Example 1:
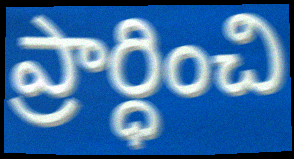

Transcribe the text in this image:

ప్రార్ధించి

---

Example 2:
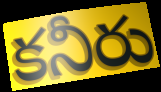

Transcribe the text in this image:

కనీరు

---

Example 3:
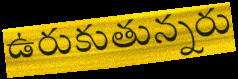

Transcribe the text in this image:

ఉరుకుతున్నరు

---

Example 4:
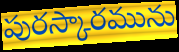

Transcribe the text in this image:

పురస్కారమును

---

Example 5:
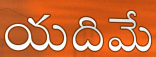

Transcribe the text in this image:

యదిమే